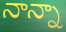
నాన్నా